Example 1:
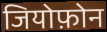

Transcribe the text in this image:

जियोफ़ोन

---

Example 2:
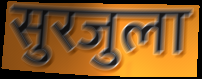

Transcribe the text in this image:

सुरजुला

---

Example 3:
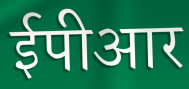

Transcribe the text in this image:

ईपीआर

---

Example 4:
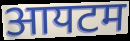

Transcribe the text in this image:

आयटम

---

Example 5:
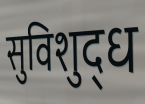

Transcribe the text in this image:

सुविशुद्ध